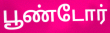
பூண்டோர்